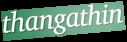
thangathin